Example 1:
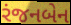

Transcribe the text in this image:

રંજનબેન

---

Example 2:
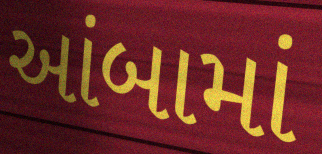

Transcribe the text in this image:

આંબામાં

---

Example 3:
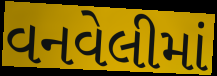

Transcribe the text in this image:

વનવેલીમાં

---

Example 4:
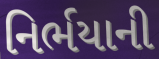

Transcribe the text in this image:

નિર્ભયાની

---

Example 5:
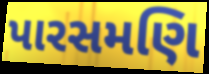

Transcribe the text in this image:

પારસમણિ